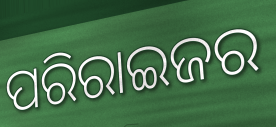
ପରିରାଇଜର